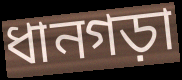
ধানগড়া